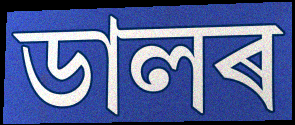
ডালৰ